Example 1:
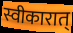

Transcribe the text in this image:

स्वीकारात्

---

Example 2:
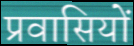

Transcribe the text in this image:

प्रवासियों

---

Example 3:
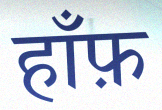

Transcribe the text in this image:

हाँफ़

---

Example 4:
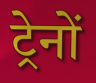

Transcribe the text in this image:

ट्रेनों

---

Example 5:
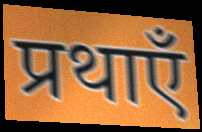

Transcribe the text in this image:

प्रथाएँ